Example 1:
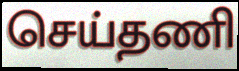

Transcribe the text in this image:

செய்தணி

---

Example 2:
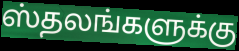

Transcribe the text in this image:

ஸ்தலங்களுக்கு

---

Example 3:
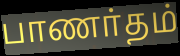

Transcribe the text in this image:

பாணர்தம்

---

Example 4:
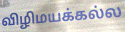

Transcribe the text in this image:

விழிமயக்கல்ல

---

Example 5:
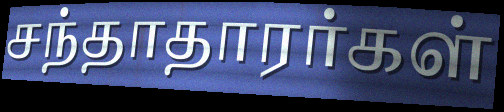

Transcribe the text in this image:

சந்தாதாரர்கள்